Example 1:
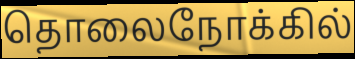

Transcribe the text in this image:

தொலைநோக்கில்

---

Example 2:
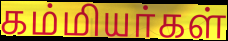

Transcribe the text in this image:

கம்மியர்கள்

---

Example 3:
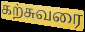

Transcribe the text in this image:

கற்சுவரை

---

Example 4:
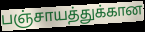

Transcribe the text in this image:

பஞ்சாயத்துக்கான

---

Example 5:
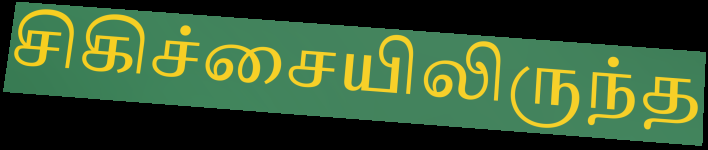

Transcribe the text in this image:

சிகிச்சையிலிருந்த